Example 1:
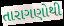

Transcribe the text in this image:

તારાગણોથી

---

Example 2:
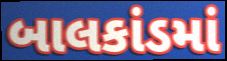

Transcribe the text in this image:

બાલકાંડમાં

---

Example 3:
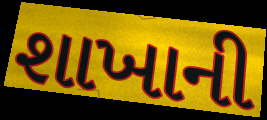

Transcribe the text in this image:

શાખાની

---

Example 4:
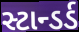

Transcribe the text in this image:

સ્ટાન્ડર્ડ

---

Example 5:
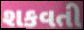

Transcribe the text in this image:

શકવતી